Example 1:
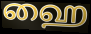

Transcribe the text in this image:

ஹை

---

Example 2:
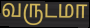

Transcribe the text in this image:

வருடமா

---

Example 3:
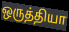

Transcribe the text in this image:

ஒருத்தியா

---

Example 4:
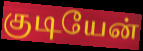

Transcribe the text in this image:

குடியேன்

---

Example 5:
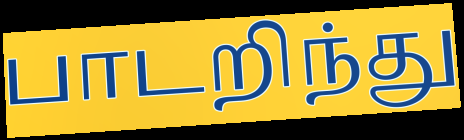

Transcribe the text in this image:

பாடறிந்து